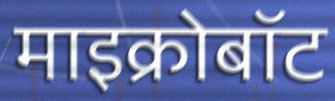
माइक्रोबॉट